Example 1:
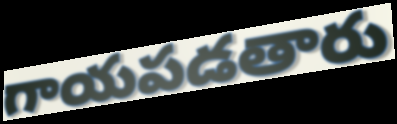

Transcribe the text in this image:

గాయపడతారు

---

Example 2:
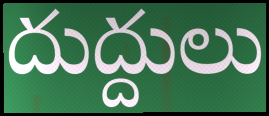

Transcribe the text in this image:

దుద్దులు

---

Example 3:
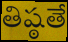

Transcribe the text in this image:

తిష్ఠతే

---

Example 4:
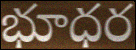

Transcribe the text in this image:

భూధర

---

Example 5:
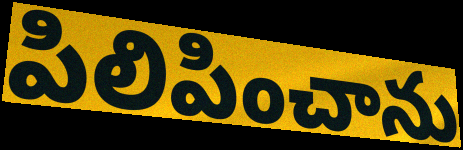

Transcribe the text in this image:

పిలిపించాను